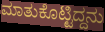
ಮಾತುಕೊಟ್ಟಿದ್ದನು